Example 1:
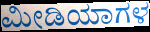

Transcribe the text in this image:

ಮೀಡಿಯಾಗಳ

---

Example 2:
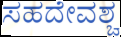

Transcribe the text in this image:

ಸಹದೇವಶ್ಚ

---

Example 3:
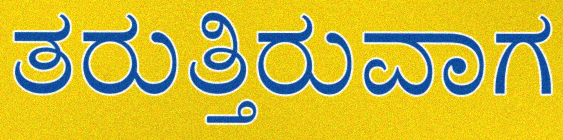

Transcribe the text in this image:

ತರುತ್ತಿರುವಾಗ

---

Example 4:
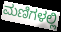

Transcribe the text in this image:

ಮಣಿಗಳಲ್ಲಿ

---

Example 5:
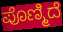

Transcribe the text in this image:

ಪೊಣ್ಮಿದೆ